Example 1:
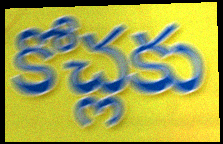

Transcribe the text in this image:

కోచ్లకు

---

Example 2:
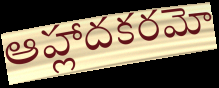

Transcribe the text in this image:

ఆహ్లాదకరమో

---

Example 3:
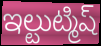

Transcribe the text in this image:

ఇల్టుట్మిష్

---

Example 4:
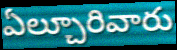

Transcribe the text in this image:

ఏల్చూరివారు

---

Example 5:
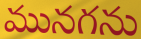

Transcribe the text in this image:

మునగను